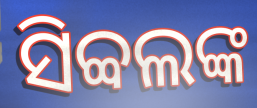
ସିବ୍ବଲଙ୍କ